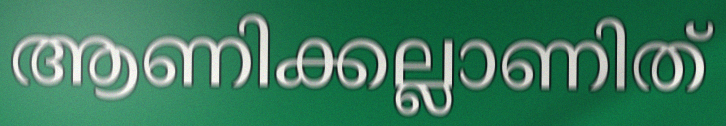
ആണിക്കല്ലാണിത്